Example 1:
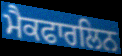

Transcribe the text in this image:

ਮੈਕਫਾਰਲਿਨ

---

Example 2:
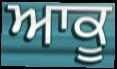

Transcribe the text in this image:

ਆਕੂ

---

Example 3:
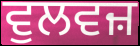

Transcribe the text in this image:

ਵੁਲਵਜ਼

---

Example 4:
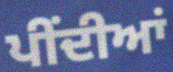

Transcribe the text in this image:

ਪੀਂਦੀਆਂ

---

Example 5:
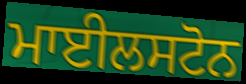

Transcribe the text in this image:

ਮਾਈਲਸਟੋਨ